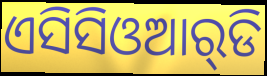
ଏସିସିଓଆର୍‌ଡି